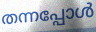
തന്നപ്പോൾ